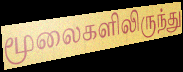
மூலைகளிலிருந்து